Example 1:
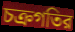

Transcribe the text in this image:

চক্রগতির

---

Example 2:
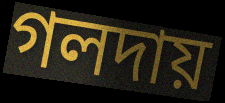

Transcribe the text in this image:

গলদায়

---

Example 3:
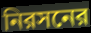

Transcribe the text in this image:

নিরসনের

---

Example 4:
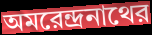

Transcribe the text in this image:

অমরেন্দ্রনাথের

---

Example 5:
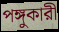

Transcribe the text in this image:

পঙ্গুকারী